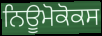
ਨਿਊਮੋਕੋਕਸ